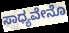
ಸಾಧ್ಯವೇನೊ